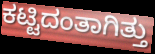
ಕಟ್ಟಿದಂತಾಗಿತ್ತು